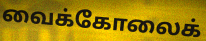
வைக்கோலைக்